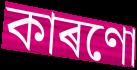
কাৰণো